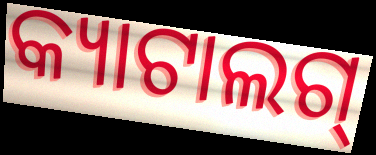
କ୍ୟାଟାଲଗ୍